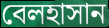
বেলহাসান